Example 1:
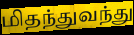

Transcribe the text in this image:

மிதந்துவந்து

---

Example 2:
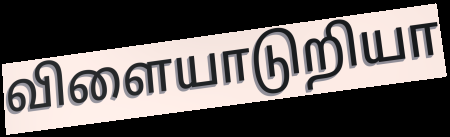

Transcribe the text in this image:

விளையாடுறியா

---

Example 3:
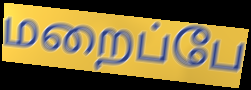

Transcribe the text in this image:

மறைப்பே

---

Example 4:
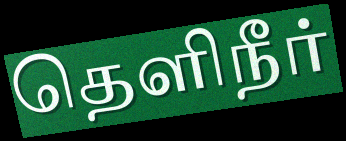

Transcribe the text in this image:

தெளிநீர்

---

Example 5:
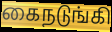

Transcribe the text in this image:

கைநடுங்கி